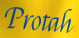
Protah